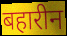
बहारीन